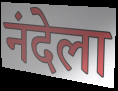
नंदेला